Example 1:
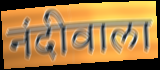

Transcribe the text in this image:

नंदीवाला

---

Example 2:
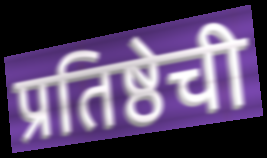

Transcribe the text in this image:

प्रतिष्ठेची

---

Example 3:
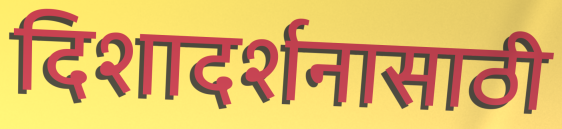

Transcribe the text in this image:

दिशादर्शनासाठी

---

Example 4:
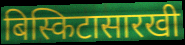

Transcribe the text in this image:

बिस्किटासारखी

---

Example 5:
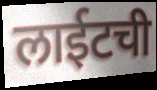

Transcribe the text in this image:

लाईटची